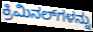
ಕ್ರಿಮಿನಲ್‍ಗಳನ್ನು